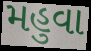
મહુવા